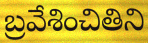
బ్రవేశించితిని